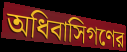
অধিবাসিগণের